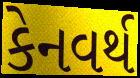
કેનવર્થ